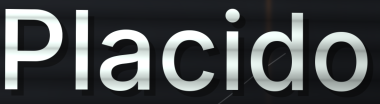
Placido